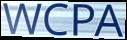
WCPA